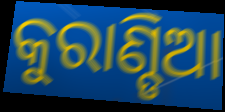
କୁରାଣ୍ଡିଆ